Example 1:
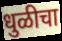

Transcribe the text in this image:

धुळीचा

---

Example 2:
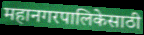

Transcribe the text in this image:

महानगरपालिकेसाठी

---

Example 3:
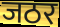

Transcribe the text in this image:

जठर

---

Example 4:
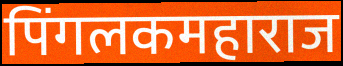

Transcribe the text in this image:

पिंगलकमहाराज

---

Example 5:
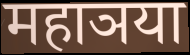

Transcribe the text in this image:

महाञया